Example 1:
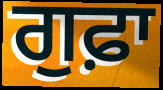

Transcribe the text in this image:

ਗੁਫ਼ਾ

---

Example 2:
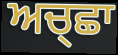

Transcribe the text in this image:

ਅਚ੍ਛਾ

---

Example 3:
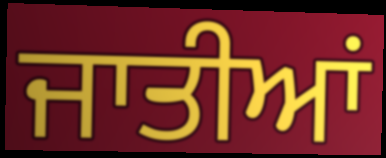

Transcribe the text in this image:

ਜਾਤੀਆਂ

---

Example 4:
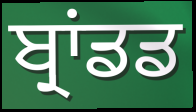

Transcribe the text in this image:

ਬ੍ਰਾਂਡਡ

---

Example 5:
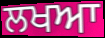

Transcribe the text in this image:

ਲਖਆ